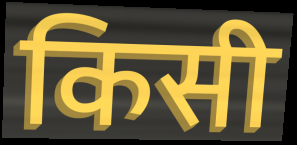
किसी